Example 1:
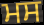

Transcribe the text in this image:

ਮਸ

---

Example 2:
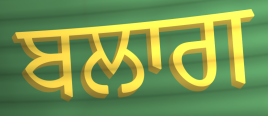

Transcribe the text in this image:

ਬਲਾਗ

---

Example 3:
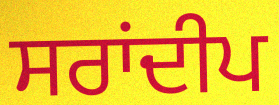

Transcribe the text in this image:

ਸਰਾਂਦੀਪ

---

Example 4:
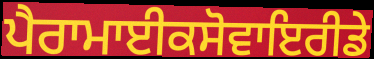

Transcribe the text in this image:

ਪੈਰਾਮਾਈਕਸੋਵਾਇਰੀਡੇ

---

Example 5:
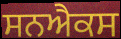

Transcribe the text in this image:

ਸਨਐਕਸ